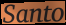
Santo